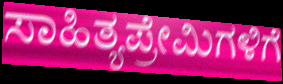
ಸಾಹಿತ್ಯಪ್ರೇಮಿಗಳಿಗೆ